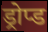
ड्रोप्ड